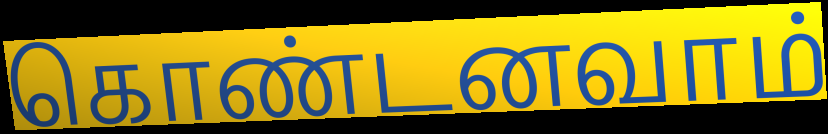
கொண்டனவாம்